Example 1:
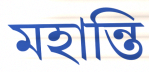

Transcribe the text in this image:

মহান্তি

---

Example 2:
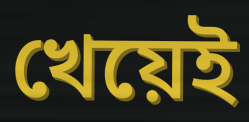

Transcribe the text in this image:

খেয়েই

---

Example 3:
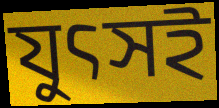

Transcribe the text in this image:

যুৎসই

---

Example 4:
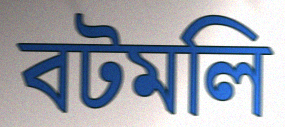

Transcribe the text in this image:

বটমলি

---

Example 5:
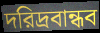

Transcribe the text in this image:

দরিদ্রবান্ধব